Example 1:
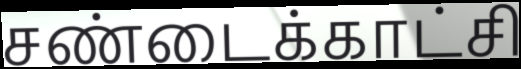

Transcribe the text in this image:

சண்டைக்காட்சி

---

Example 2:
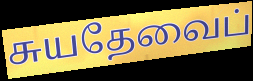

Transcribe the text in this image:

சுயதேவைப்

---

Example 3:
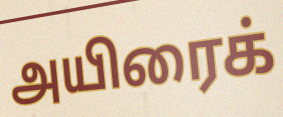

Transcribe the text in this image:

அயிரைக்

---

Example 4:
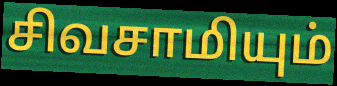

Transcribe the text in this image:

சிவசாமியும்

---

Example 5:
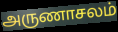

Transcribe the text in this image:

அருணாசலம்